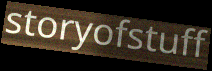
storyofstuff